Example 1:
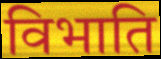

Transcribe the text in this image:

विभाति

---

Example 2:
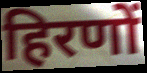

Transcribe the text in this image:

हिरणों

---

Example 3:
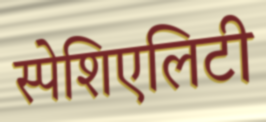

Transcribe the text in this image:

स्पेशिएलिटी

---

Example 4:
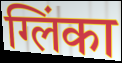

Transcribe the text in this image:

ग्लिंका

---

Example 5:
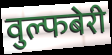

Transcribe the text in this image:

वुल्फबेरी